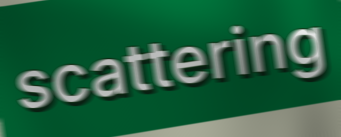
scattering